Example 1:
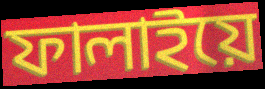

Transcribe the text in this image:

ফালাইয়ে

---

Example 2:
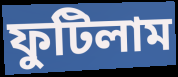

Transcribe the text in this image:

ফুটিলাম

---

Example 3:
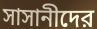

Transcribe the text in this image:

সাসানীদের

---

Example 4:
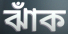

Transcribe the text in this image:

ঝাঁক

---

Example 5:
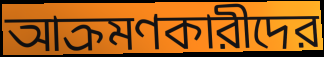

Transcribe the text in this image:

আক্রমণকারীদের